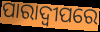
ପାରାଦ୍ବୀପରେ